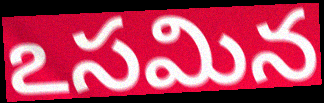
ఽసమిన